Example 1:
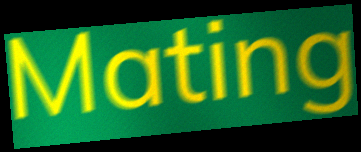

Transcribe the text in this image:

Mating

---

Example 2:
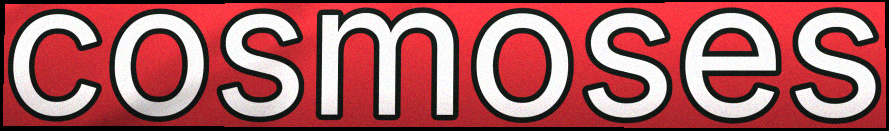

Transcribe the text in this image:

cosmoses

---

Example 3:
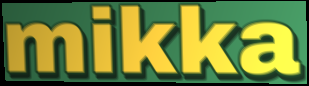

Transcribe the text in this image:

mikka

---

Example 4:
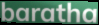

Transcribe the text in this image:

baratha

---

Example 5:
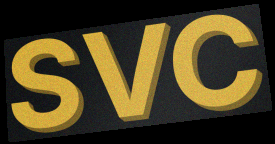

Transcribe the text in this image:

SVC